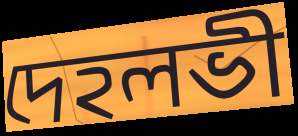
দেহলভী